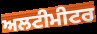
ਅਲਟੀਮੀਟਰ